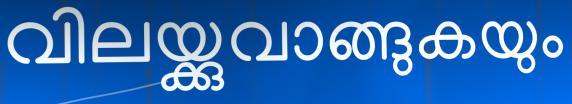
വിലയ്ക്കുവാങ്ങുകയും